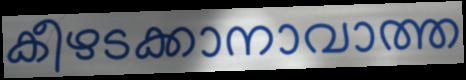
കീഴടക്കാനാവാത്ത